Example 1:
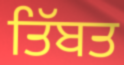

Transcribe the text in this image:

ਤਿੱਬਤ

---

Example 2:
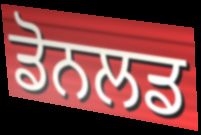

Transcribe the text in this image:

ਡੋਨਲਡ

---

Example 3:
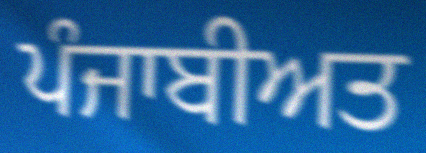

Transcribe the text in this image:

ਪੰਜਾਬੀਅਤ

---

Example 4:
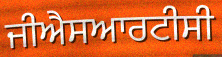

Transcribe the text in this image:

ਜੀਐਸਆਰਟੀਸੀ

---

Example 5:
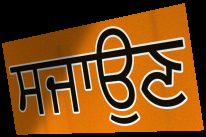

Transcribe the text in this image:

ਸਜਾਉਣ